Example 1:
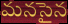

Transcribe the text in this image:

మనసైన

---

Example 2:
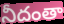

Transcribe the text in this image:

నీదంతా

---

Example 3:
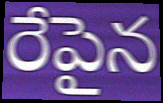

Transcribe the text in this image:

రేపైన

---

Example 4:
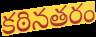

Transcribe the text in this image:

కఠినతరం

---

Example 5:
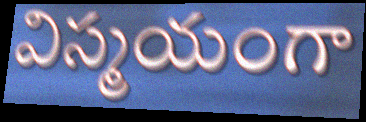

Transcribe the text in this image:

విస్మయంగా